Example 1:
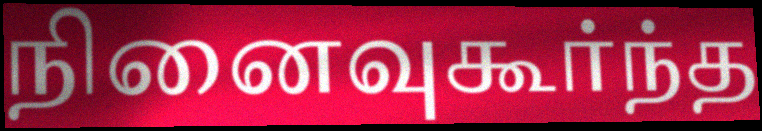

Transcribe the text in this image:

நினைவுகூர்ந்த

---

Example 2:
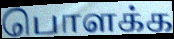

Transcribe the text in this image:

பொளக்க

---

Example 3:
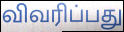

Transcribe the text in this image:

விவரிப்பது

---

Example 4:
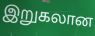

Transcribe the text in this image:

இறுகலான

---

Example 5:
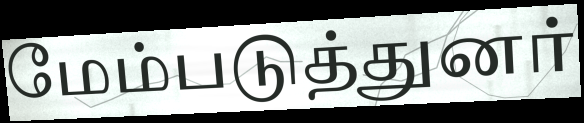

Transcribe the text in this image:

மேம்படுத்துனர்